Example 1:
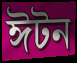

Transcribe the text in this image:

ঈটন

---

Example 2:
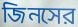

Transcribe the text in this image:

জিনসের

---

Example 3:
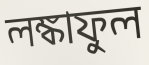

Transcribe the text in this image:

লঙ্কাফুল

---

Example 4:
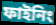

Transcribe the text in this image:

ফাইনিং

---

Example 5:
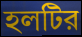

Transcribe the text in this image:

হলটির